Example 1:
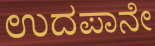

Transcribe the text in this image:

ಉದಪಾನೇ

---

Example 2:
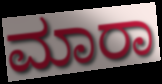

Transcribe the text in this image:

ಮಾರಾ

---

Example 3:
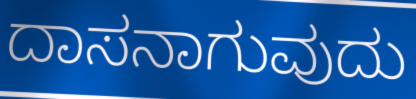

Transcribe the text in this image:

ದಾಸನಾಗುವುದು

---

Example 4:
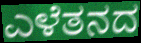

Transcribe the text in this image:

ಎಳೆತನದ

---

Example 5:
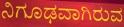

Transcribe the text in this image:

ನಿಗೂಢವಾಗಿರುವ